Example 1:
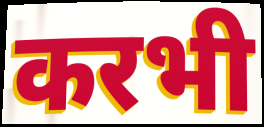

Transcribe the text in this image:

करभी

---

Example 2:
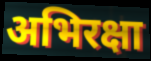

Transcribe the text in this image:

अभिरक्षा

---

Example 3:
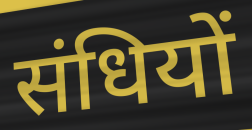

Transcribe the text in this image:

संधियों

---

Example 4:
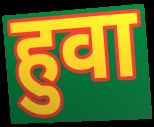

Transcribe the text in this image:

हुवा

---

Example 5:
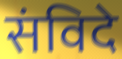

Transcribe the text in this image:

संविदे